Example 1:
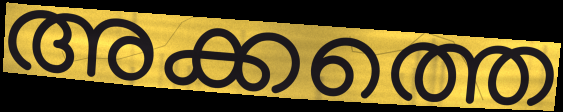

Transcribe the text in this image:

അക്കത്തെ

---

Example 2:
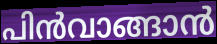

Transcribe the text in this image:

പിൻവാങ്ങാൻ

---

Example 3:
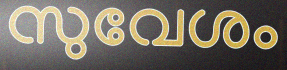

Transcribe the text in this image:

സുവേശം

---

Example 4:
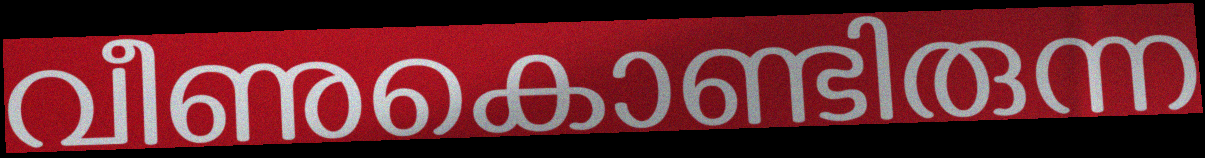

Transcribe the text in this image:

വീണുകൊണ്ടിരുന്ന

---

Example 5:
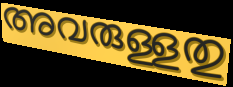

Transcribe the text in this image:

അവരുള്ളതു